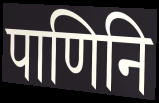
पाणिनि